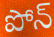
పోన్